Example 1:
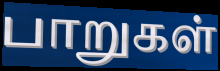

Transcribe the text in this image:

பாறுகள்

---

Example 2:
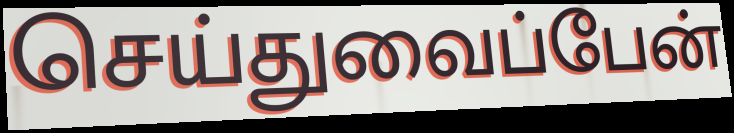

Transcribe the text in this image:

செய்துவைப்பேன்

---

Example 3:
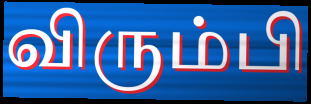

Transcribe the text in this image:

விரும்பி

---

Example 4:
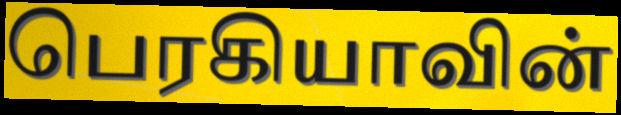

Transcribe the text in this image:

பெரகியாவின்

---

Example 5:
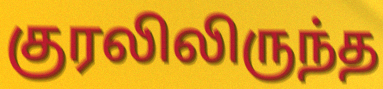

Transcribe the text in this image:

குரலிலிருந்த